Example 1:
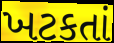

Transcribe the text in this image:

ખટકતાં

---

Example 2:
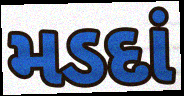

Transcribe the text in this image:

મડદાં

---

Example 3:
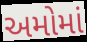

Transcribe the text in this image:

અમોમાં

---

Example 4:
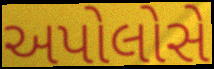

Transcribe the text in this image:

અપોલોસે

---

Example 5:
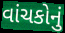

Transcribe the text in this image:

વાંચકોનું